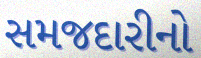
સમજદારીનો